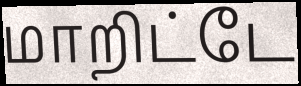
மாறிட்டே